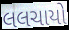
લલચાયો